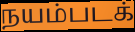
நயம்படக்